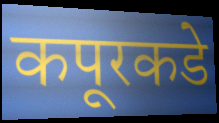
कपूरकडे